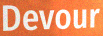
Devour